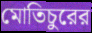
মোতিচুরের